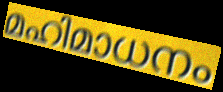
മഹിമാധനം